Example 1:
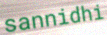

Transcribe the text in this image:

sannidhi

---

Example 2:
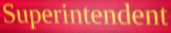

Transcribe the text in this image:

Superintendent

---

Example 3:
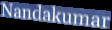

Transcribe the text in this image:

Nandakumar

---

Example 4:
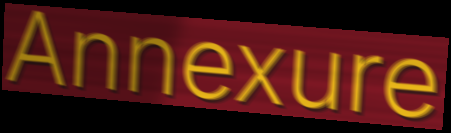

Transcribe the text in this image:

Annexure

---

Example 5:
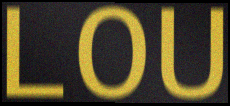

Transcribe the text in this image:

LOU